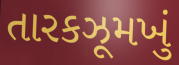
તારકઝૂમખું